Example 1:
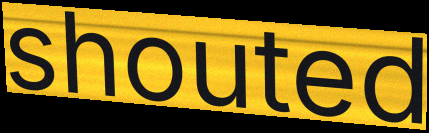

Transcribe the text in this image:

shouted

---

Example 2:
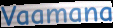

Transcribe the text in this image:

Vaamana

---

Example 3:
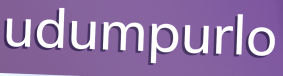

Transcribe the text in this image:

udumpurlo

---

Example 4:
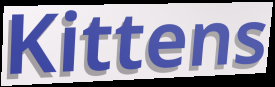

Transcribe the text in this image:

Kittens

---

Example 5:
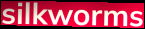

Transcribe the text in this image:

silkworms